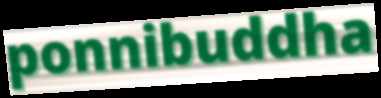
ponnibuddha